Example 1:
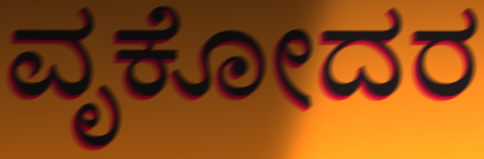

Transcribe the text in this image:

ವೃಕೋದರ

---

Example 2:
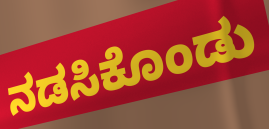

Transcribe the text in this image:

ನಡಸಿಕೊಂಡು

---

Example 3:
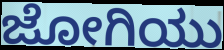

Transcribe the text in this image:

ಜೋಗಿಯು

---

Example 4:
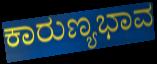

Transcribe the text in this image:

ಕಾರುಣ್ಯಭಾವ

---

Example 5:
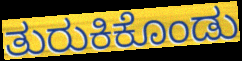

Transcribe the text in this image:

ತುರುಕಿಕೊಂಡು